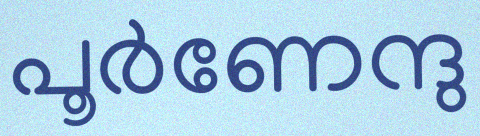
പൂർണേന്ദു